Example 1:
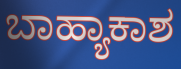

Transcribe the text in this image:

ಬಾಹ್ಯಾಕಾಶ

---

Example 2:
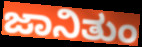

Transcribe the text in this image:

ಜಾನಿತುಂ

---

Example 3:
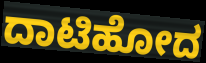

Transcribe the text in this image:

ದಾಟಿಹೋದ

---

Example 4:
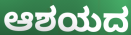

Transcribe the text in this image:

ಆಶಯದ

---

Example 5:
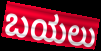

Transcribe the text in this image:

ಬಯಲು